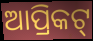
ଆପ୍ରିକଟ୍